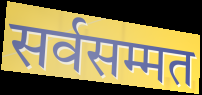
सर्वसम्मत